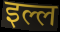
इल्ल